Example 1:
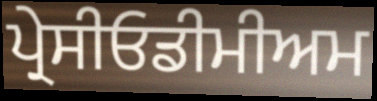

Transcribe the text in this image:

ਪ੍ਰੇਸੀਓਡੀਮੀਅਮ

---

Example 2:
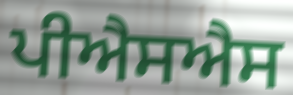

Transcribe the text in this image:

ਪੀਐਸਐਸ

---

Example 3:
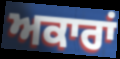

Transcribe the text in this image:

ਅਕਾਰਾਂ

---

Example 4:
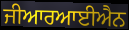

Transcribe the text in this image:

ਜੀਆਰਆਈਐਨ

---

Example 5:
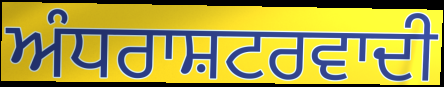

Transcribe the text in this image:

ਅੰਧਰਾਸ਼ਟਰਵਾਦੀ